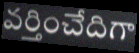
వర్తించేదిగా